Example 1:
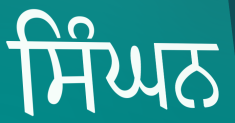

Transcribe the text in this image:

ਸਿੰਘਨ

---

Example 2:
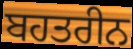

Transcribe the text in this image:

ਬਹਤਰੀਨ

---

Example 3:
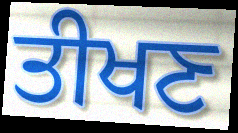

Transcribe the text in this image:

ਤੀਖਣ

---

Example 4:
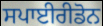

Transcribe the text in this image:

ਸਪਾਈਰੀਡੋਨ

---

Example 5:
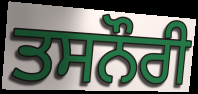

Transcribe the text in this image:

ਤਸਨੌਰੀ